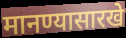
मानण्यासारखे